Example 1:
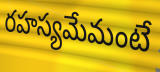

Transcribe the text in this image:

రహస్యమేమంటే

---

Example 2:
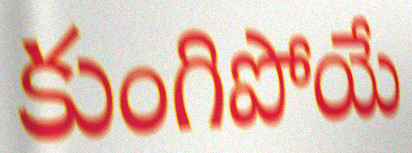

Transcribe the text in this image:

కుంగిపోయే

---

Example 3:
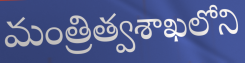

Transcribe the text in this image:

మంత్రిత్వశాఖలోని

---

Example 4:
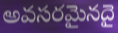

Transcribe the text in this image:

అవసరమైనదై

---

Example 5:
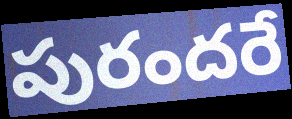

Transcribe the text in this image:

పురందరే